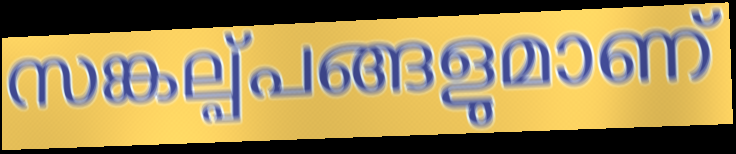
സങ്കല്പ്പങ്ങളുമാണ്